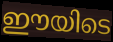
ഈയിടെ